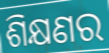
ଶିକ୍ଷଣର